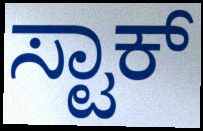
ಸ್ಟಾಕ್